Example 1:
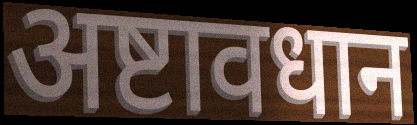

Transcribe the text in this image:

अष्टावधान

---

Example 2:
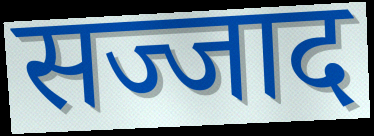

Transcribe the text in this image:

सज्जाद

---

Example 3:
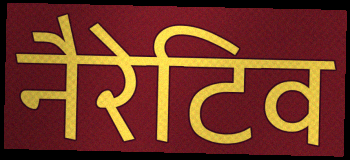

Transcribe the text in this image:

नैरेटिव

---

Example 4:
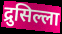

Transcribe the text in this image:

द्रुसिल्ला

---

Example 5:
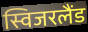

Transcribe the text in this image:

स्विजरलैंड